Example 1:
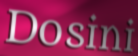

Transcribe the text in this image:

Dosini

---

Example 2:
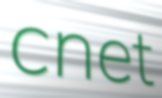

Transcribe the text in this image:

cnet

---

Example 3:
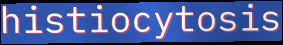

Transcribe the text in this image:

histiocytosis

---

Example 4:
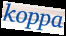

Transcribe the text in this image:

koppa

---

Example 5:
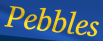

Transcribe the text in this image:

Pebbles